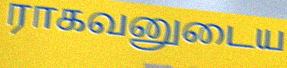
ராகவனுடைய